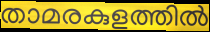
താമരകുളത്തിൽ